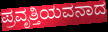
ಪ್ರವೃತ್ತಿಯವನಾದ